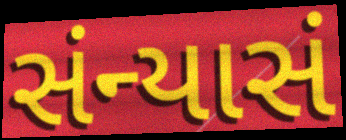
સંન્યાસં